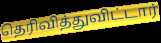
தெரிவித்துவிட்டார்